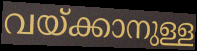
വയ്ക്കാനുള്ള